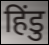
हिंडु